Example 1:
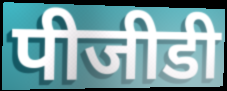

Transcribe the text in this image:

पीजीडी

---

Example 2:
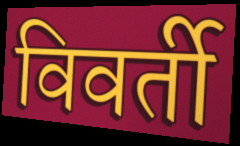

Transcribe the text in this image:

विवर्ती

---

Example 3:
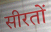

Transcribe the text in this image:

सीरतों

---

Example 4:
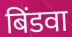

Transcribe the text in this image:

बिंडवा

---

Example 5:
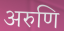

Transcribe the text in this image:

अरुणि